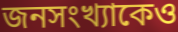
জনসংখ্যাকেও